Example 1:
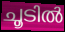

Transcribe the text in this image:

ചൂടിൽ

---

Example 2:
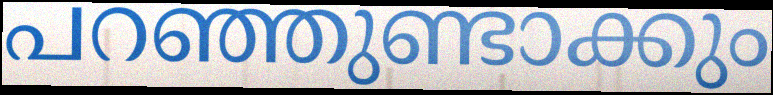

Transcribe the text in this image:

പറഞ്ഞുണ്ടാക്കും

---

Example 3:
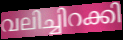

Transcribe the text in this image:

വലിച്ചിറക്കി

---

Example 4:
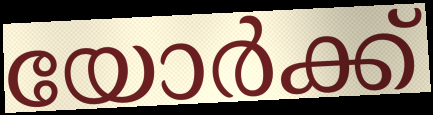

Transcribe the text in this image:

യോർക്ക്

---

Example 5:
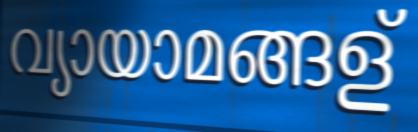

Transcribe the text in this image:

വ്യായാമങ്ങള്